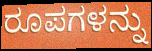
ರೂಪಗಳನ್ನು